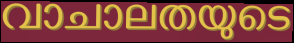
വാചാലതയുടെ